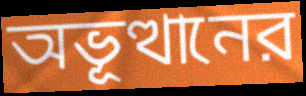
অভূত্থানের